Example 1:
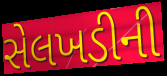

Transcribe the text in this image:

સેલખડીની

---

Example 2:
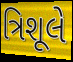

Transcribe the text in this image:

ત્રિશૂલે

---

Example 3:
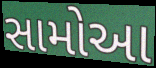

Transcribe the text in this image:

સામોઆ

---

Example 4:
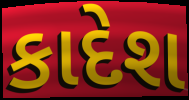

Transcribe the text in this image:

કાદેશ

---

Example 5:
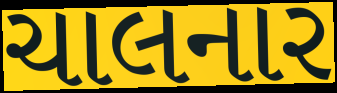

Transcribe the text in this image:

ચાલનાર